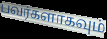
பவர்களாகவும்